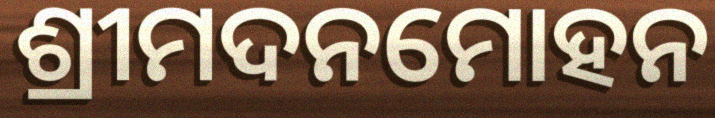
ଶ୍ରୀମଦନମୋହନ